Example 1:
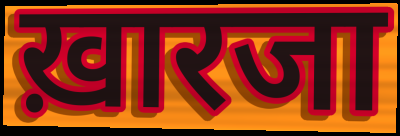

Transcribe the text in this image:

ख़ारजा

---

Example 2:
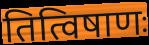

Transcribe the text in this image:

तित्विषाणः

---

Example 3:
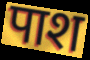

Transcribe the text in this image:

पाश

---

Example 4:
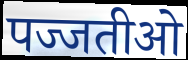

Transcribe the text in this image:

पज्जतीओ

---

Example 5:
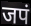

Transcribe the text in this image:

जपं